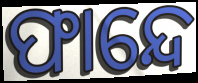
ଫାନ୍ଦେ